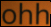
ohh